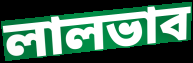
লালভাব